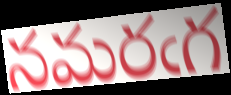
నమరఁగ